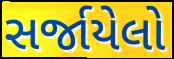
સર્જાયેલો